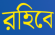
রহিবে